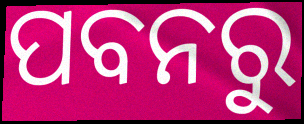
ପବନରୁ